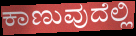
ಕಾಣುವುದೆಲ್ಲಿ